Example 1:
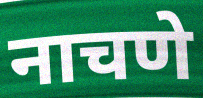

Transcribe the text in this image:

नाचणे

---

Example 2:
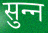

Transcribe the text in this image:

सुन्‍न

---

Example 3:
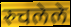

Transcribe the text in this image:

रुचलेले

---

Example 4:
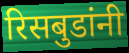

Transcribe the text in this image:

रिसबुडांनी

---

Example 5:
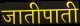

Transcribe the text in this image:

जातीपाती